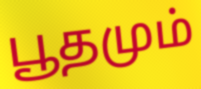
பூதமும்